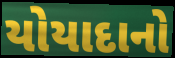
યોયાદાનો